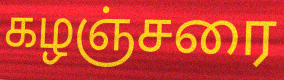
கழஞ்சரை